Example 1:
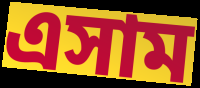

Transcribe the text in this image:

এসাম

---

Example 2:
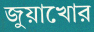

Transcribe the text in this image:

জুয়াখোর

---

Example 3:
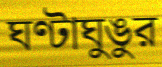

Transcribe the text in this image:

ঘণ্টাঘুঙুর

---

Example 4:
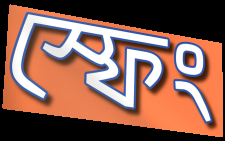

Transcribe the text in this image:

স্ফেং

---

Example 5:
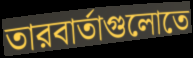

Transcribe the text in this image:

তারবার্তাগুলোতে